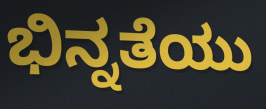
ಭಿನ್ನತೆಯು